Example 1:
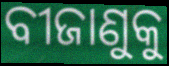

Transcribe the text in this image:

ବୀଜାଣୁକୁ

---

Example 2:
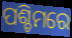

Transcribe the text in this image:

ପଶ୍ଚିମରେ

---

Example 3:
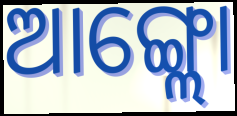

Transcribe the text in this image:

ଆଙ୍ଗ୍ଲୋ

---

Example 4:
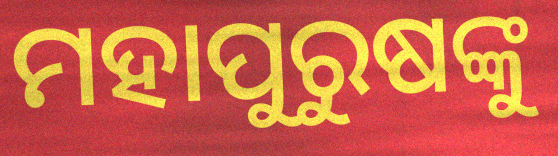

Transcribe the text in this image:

ମହାପୁରୁଷଙ୍କୁ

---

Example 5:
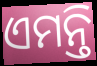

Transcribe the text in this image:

ଏମନ୍ତି